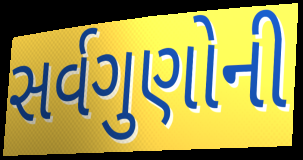
સર્વગુણોની